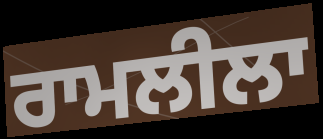
ਰਾਮਲੀਲਾ